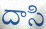
దాసి